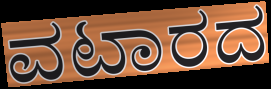
ವಟಾರದ